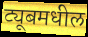
ट्यूबमधील